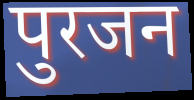
पुरजन